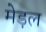
मेड़ल